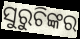
ସୁରୁଚିଙ୍କର